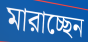
মারাচ্ছেন